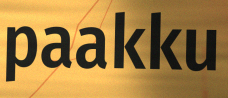
paakku